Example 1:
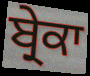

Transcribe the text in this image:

ਬ੍ਰੇਕਾ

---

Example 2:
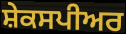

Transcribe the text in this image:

ਸ਼ੇਕਸਪੀਅਰ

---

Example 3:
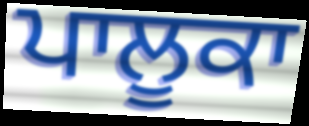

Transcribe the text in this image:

ਪਾਲੂਕਾ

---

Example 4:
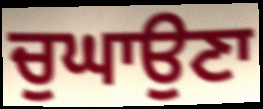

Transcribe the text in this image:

ਚੁਘਾਉਣਾ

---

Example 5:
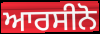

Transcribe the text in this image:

ਆਰਸੀਨੋ